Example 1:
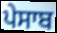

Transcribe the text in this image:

ਪੇਸਾਬ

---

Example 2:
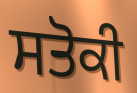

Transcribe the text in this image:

ਸਤੋਕੀ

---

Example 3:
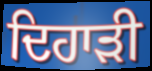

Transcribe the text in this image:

ਦਿਹਾੜੀ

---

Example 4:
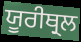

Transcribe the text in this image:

ਯੂਰੀਥ੍ਰਲ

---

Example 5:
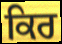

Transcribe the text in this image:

ਕਿਰ